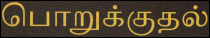
பொறுக்குதல்